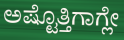
ಅಷ್ಟೊತ್ತಿಗಾಗ್ಲೇ